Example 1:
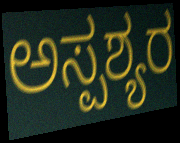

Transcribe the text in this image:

ಅಸ್ಪಶ್ಯರ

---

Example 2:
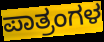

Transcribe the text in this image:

ಪಾತ್ರಂಗಳ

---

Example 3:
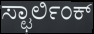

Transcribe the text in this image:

ಸ್ಟಾರ್ಲಿಂಕ್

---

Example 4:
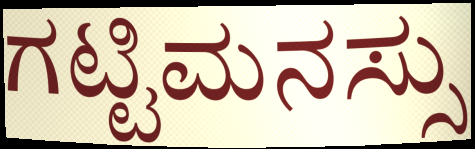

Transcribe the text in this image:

ಗಟ್ಟಿಮನಸ್ಸು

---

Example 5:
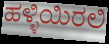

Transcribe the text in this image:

ಹಳ್ಳಿಯಿರಲಿ